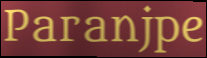
Paranjpe